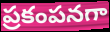
ప్రకంపనగా